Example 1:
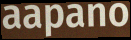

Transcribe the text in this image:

aapano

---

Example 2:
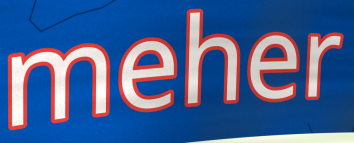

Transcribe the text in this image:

meher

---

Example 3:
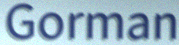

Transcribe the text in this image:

Gorman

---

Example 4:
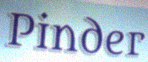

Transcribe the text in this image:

Pinder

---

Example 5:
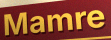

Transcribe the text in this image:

Mamre